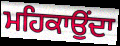
ਮਹਿਕਾਉਂਦਾ